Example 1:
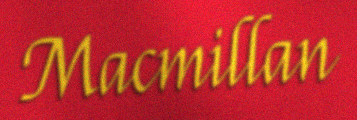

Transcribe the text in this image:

Macmillan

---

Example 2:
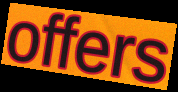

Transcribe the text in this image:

offers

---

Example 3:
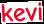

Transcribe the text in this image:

kevi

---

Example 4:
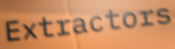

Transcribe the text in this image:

Extractors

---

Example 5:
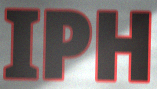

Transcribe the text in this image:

IPH